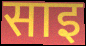
साइ